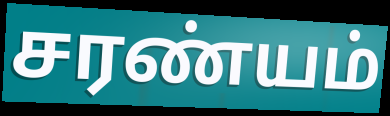
சரண்யம்